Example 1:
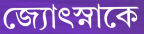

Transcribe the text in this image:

জ্যোৎস্নাকে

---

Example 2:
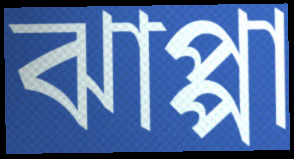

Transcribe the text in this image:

ঝাপ্পা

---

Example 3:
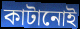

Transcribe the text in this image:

কাটানোই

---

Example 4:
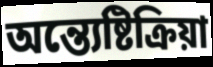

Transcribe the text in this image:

অন্ত্যেষ্টিক্রিয়া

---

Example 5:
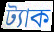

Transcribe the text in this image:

ট্যাক